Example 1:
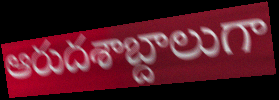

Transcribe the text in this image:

ఆరుదశాబ్దాలుగా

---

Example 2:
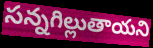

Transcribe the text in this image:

సన్నగిల్లుతాయని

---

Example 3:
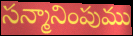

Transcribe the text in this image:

సన్మానింపుము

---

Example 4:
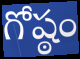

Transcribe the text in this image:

గోష్ఠం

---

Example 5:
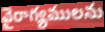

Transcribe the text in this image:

వైరాగ్యములను